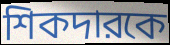
শিকদারকে